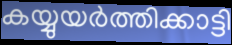
കയ്യുയർത്തിക്കാട്ടി